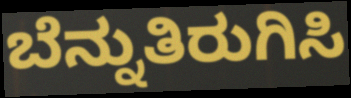
ಬೆನ್ನುತಿರುಗಿಸಿ